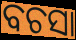
ବଚସା